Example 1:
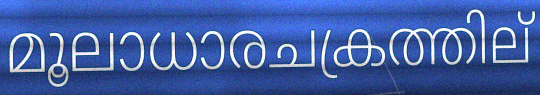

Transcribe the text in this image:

മൂലാധാരചക്രത്തില്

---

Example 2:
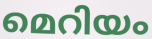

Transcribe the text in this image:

മെറിയം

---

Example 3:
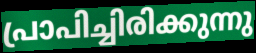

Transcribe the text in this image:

പ്രാപിച്ചിരിക്കുന്നു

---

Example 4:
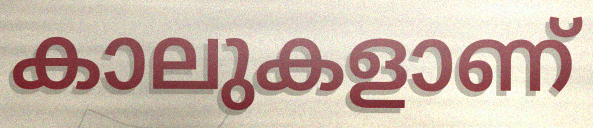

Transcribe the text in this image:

കാലുകളാണ്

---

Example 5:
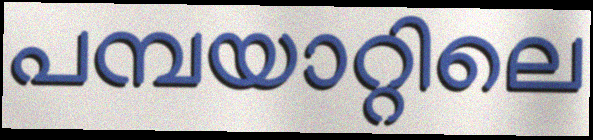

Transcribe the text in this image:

പമ്പയാറ്റിലെ